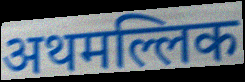
अथमल्लिक